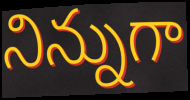
నిన్నుగా